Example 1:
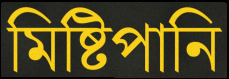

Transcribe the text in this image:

মিষ্টিপানি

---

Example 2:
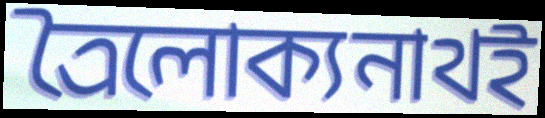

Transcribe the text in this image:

ত্রৈলোক্যনাথই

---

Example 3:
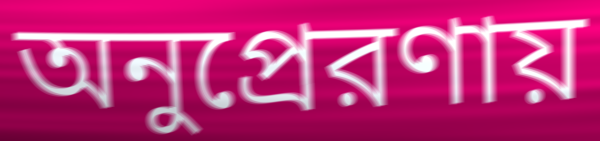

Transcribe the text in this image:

অনুপ্রেরণায়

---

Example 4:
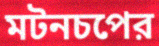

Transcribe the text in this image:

মটনচপের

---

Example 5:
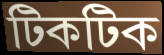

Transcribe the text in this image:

টিকটিক